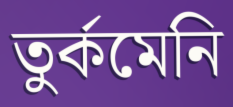
তুর্কমেনি